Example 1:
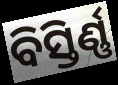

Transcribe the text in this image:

ବିସ୍ତିର୍ଣ୍ଣ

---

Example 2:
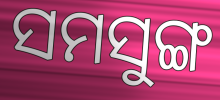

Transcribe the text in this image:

ସମସୁଙ୍ଗ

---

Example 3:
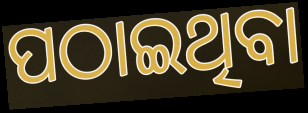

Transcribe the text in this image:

ପଠାଇଥିବା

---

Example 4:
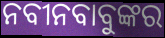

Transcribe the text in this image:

ନବୀନବାବୁଙ୍କର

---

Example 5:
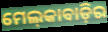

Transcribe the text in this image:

ମେଲ୍‌କାବାଡ଼ିର